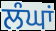
ਲੰਘਾਂ